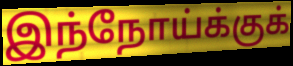
இந்நோய்க்குக்